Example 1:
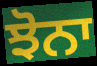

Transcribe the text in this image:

ਝੋਨਾ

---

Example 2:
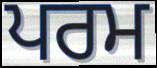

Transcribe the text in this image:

ਪਰਮ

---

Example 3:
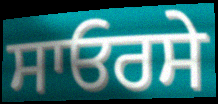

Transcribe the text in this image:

ਸਾਓਰਸੇ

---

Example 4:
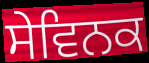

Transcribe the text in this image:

ਸੇਵਿਨਕ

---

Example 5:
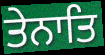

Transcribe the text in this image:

ਤੇਨਾਤਿ